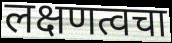
लक्षणत्वचा